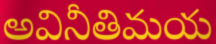
అవినీతిమయ